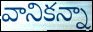
వానికన్నా